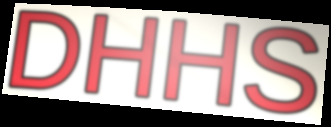
DHHS